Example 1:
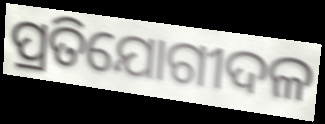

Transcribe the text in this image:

ପ୍ରତିଯୋଗୀଦଳ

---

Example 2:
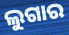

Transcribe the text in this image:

ଲୁଗାର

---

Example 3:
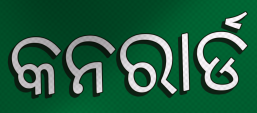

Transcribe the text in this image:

କନରାର୍ଡ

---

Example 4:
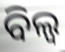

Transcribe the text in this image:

ବିଲ୍ଵ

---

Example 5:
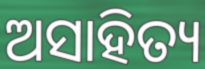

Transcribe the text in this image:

ଅସାହିତ୍ୟ